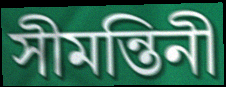
সীমন্তিনী